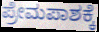
ಪ್ರೇಮಪಾಶಕ್ಕೆ